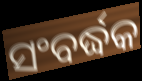
ସଂବର୍ଦ୍ଧକ